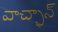
వాచ్ఛాన్